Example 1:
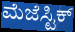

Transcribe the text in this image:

ಮೆಜೆಸ್ಟಿಕ್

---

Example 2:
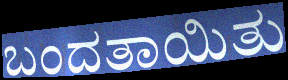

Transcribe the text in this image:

ಬಂದತಾಯಿತು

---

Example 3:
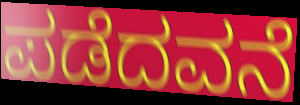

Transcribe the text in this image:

ಪಡೆದವನೆ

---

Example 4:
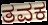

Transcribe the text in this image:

ತವಕ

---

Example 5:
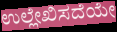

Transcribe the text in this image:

ಉಲ್ಲೇಖಿಸದೆಯೇ